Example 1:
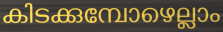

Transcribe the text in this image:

കിടക്കുമ്പോഴെല്ലാം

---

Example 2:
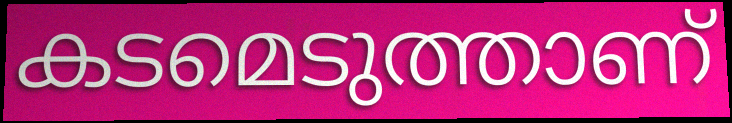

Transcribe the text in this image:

കടമെടുത്താണ്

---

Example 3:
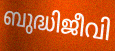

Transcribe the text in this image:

ബുദ്ധിജീവി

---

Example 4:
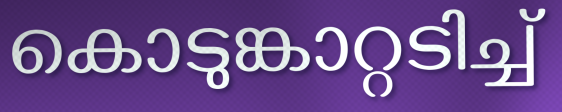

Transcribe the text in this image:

കൊടുങ്കാറ്റടിച്ച്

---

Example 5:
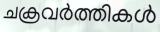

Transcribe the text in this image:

ചക്രവർത്തികൾ